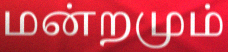
மன்றமும்